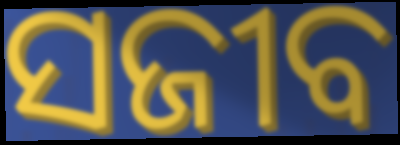
ସଜୀବ